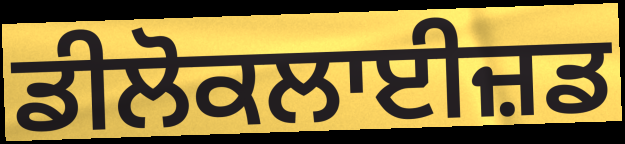
ਡੀਲੋਕਲਾਈਜ਼ਡ